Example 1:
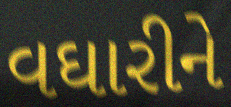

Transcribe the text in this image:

વઘારીને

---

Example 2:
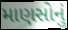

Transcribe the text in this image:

માણસોનું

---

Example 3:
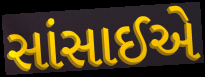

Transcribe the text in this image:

સાંસાઈએ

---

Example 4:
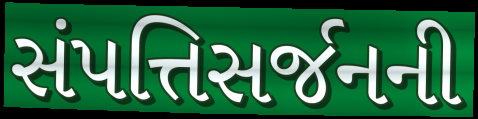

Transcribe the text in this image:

સંપત્તિસર્જનની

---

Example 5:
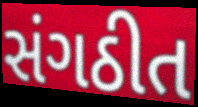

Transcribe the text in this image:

સંગઠીત